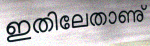
ഇതിലേതാണു്